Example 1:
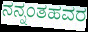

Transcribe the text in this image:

ನನ್ನಂತಹವರ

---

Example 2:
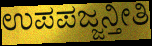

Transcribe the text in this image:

ಉಪಪಜ್ಜನ್ತೀತಿ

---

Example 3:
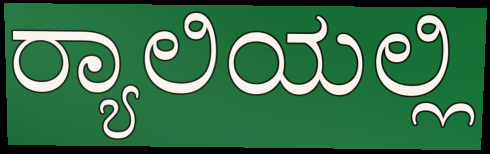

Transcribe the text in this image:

ರ‍್ಯಾಲಿಯಲ್ಲಿ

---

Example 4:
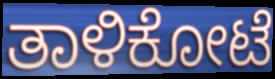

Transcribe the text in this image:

ತಾಳಿಕೋಟೆ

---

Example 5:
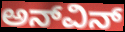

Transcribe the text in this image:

ಅನ್‌ವಿನ್